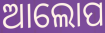
ଆଲୋପ